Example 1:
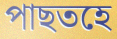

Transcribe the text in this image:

পাছতহে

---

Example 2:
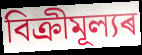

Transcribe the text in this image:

বিক্ৰীমূল্যৰ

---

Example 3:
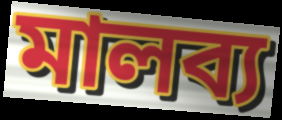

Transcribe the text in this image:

মালব্য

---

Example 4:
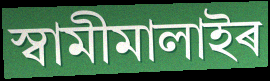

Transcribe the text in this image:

স্বামীমালাইৰ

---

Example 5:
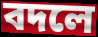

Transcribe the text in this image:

বদলে